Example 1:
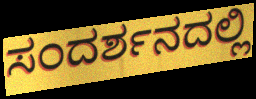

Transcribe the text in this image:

ಸಂದರ್ಶನದಲ್ಲಿ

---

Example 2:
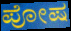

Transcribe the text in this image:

ಪೋಷ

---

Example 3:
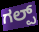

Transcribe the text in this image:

ಗಲ್ಪ್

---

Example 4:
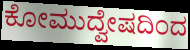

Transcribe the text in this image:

ಕೋಮುದ್ವೇಷದಿಂದ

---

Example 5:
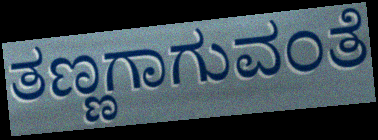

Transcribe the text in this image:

ತಣ್ಣಗಾಗುವಂತೆ